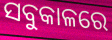
ସବୁକାଳରେ